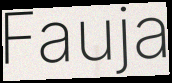
Fauja